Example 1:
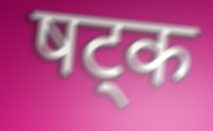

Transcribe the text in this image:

षट्क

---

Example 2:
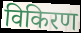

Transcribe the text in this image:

विकिरण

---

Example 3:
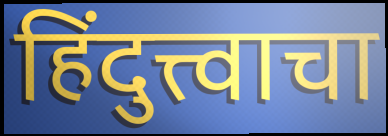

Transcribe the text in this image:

हिंदुत्त्वाचा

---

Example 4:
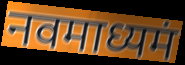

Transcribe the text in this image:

नवमाध्यमं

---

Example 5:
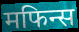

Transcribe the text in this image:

मफिन्स